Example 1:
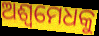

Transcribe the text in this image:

ଅଶ୍ୱମେଧକୁ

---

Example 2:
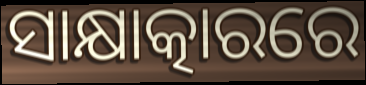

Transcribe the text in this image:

ସାକ୍ଷାତ୍କାରରେ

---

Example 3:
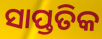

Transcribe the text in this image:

ସାପ୍ତତିକ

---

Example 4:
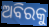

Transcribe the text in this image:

ଅବିରକୁ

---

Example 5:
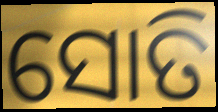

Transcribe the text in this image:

ସୋତି